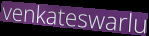
venkateswarlu